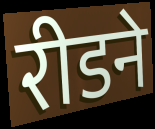
रीडने